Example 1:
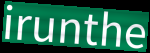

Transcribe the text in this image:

irunthe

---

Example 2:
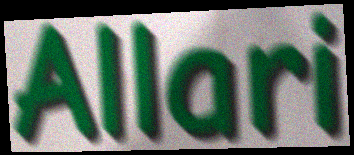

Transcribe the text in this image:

Allari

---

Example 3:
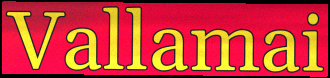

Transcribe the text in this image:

Vallamai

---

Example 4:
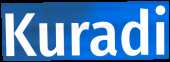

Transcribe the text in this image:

Kuradi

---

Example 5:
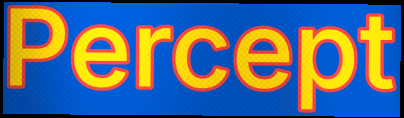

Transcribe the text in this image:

Percept